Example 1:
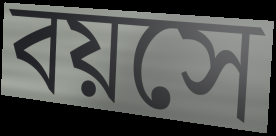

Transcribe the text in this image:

বয়সে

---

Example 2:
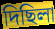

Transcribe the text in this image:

দিছিলা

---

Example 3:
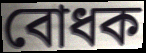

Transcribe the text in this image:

বোধক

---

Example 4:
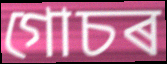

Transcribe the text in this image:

গোচৰ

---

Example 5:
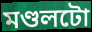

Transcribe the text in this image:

মণ্ডলটো